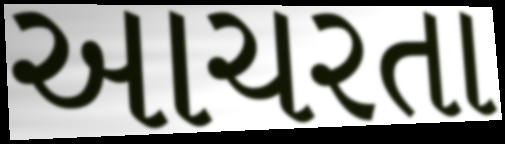
આચરતા